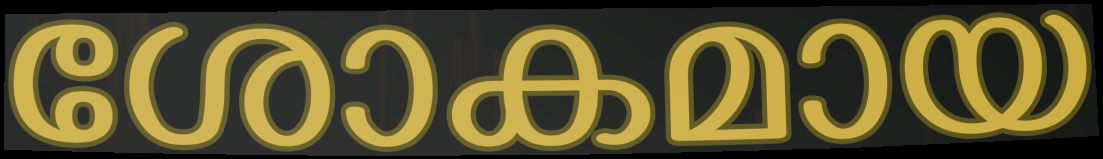
ശോകമായ